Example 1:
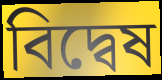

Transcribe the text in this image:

বিদ্বেষ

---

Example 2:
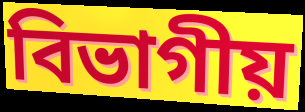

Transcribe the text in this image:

বিভাগীয়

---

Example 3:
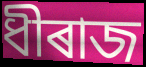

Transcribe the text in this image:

ধীৰাজ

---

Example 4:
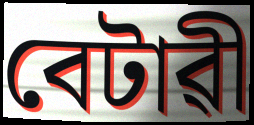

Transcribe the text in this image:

বেটাৱী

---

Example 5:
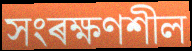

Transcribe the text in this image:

সংৰক্ষণশীল